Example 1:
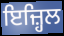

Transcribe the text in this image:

ਇਜ਼੍ਹਿਲ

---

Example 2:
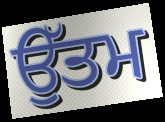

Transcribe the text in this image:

ਉੱਤਮ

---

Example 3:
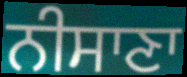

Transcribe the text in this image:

ਨੀਸਾਣਾ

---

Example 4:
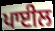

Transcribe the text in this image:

ਪਾਈਲ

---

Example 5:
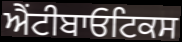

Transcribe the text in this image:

ਐਂਟੀਬਾਓਟਿਕਸ